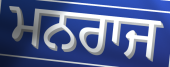
ਮਨਰਾਜ